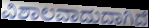
ವಿಶಾಲವಾದುದಾಗಿದೆ